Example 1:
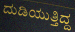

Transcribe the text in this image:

ದುಡಿಯುತ್ತಿದ್ದ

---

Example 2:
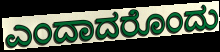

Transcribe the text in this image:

ಎಂದಾದರೊಂದು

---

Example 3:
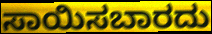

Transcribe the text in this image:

ಸಾಯಿಸಬಾರದು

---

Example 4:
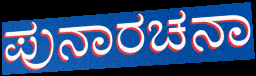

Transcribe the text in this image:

ಪುನಾರಚನಾ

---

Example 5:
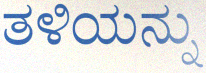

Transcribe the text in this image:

ತಳಿಯನ್ನು